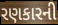
રણકારની